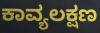
ಕಾವ್ಯಲಕ್ಷಣ